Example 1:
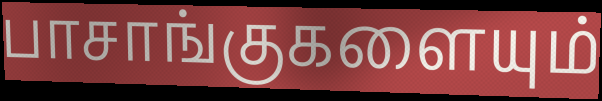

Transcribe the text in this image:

பாசாங்குகளையும்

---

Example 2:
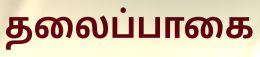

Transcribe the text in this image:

தலைப்பாகை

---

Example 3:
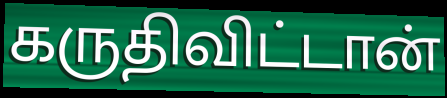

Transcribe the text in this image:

கருதிவிட்டான்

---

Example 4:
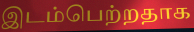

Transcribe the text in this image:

இடம்பெற்றதாக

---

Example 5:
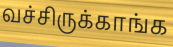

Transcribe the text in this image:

வச்சிருக்காங்க